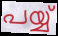
പയ്യ്